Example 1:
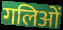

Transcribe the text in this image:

गलिओं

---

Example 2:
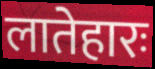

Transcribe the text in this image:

लातेहारः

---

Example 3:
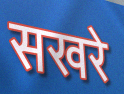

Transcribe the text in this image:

सखरे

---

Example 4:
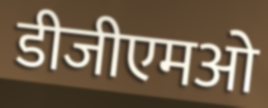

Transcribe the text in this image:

डीजीएमओ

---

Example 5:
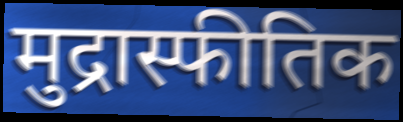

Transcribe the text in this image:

मुद्रास्फीतिक